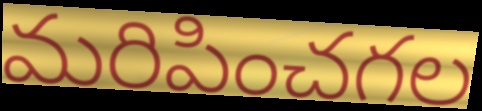
మరిపించగల